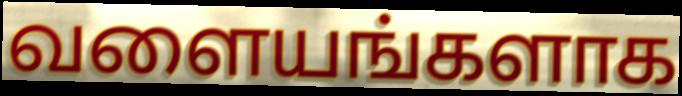
வளையங்களாக